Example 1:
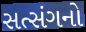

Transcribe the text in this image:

સત્સંગનો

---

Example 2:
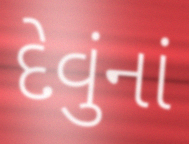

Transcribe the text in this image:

દેવુંનાં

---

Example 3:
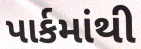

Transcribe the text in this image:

પાર્કમાંથી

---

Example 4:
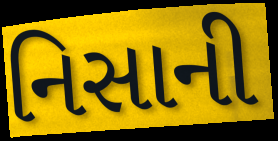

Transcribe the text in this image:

નિસાની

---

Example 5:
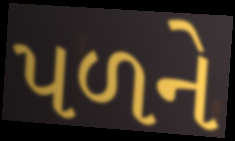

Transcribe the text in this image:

પળને